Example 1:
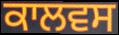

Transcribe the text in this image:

ਕਾਲਵਸ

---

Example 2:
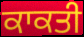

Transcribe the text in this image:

ਕਾਕਤੀ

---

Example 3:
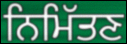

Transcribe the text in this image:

ਨਿਮਿੱਤਣ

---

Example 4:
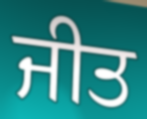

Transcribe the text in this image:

ਜੀਤ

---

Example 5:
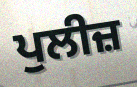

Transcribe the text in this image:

ਪੁਲੀਜ਼